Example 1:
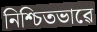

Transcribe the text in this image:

নিশ্চিতভাৱে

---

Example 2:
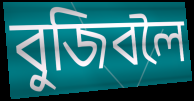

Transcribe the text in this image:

বুজিবলৈ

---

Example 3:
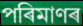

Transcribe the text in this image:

পৰিমাণৰ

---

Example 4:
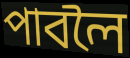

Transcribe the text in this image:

পাবলৈ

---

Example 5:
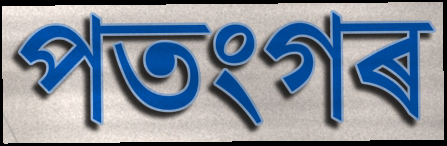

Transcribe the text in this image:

পতংগৰ